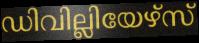
ഡിവില്ലിയേഴ്സ്